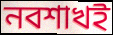
নবশাখই